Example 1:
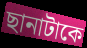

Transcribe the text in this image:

ছানাটাকে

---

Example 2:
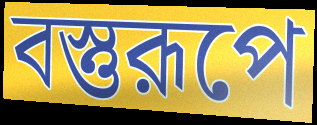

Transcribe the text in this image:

বস্তুরূপে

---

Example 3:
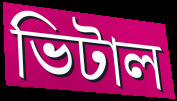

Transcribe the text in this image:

ভিটাল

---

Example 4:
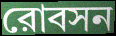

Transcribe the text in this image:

রোবসন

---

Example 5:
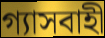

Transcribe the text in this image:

গ্যাসবাহী